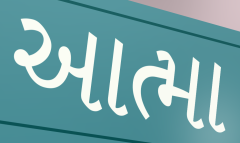
આત્મા